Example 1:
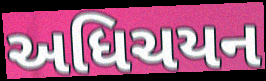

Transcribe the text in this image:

અધિચયન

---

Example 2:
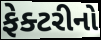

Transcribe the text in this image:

ફેક્ટરીનો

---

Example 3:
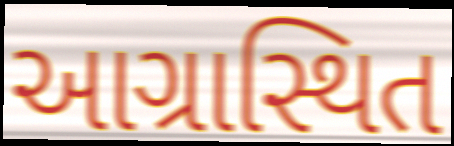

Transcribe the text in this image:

આગ્રાસ્થિત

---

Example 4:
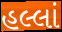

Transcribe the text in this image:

હલ્લાં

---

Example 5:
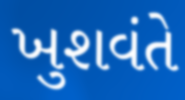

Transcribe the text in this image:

ખુશવંતે